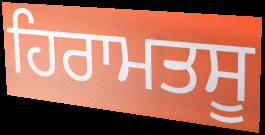
ਹਿਰਾਮਤਸੂ